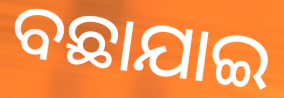
ବଛାଯାଇ